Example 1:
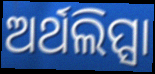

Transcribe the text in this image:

ଅର୍ଥଲିପ୍ସା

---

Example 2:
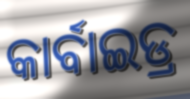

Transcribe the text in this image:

କାର୍ବାଇଡ୍ର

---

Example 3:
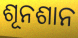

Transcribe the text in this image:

ଶୂନଶାନ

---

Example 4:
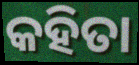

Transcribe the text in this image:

କହିତା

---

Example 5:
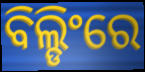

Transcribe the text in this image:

ବିଲ୍ଡିଂରେ